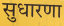
सुधारणा